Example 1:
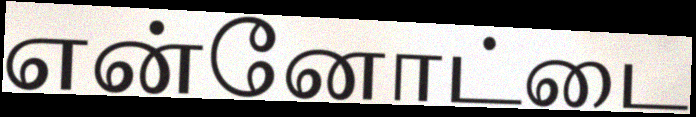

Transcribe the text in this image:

என்னோட்டை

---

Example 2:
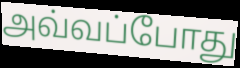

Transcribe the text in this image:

அவ்வப்போது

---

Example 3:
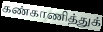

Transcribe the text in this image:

கண்காணித்துக்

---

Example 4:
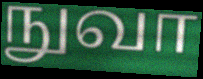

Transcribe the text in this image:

நுவா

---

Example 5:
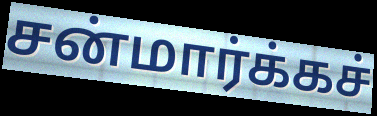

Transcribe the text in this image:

சன்மார்க்கச்